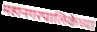
महानगरपालिकेच्या